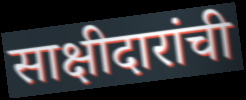
साक्षीदारांची